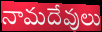
నామదేవులు